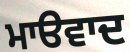
ਮਾੳਵਾਦ